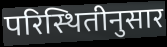
परिस्थितीनुसार